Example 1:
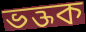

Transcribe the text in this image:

ভক্তক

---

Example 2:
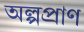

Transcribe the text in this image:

অল্পপ্ৰাণ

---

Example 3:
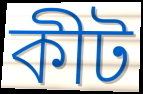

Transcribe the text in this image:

কীট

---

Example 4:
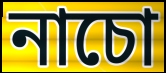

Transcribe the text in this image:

নাচো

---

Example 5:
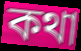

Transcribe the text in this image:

কথা